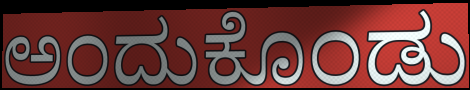
ಅಂದುಕೊಂಡು